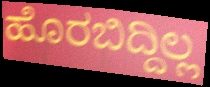
ಹೊರಬಿದ್ದಿಲ್ಲ